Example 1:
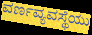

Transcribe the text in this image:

ವರ್ಣವ್ಯವಸ್ಥೆಯು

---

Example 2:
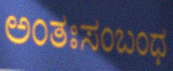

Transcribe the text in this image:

ಅಂತಃಸಂಬಂಧ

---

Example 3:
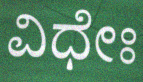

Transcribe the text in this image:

ವಿಧೇಃ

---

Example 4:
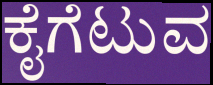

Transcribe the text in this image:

ಕೈಗೆಟುವ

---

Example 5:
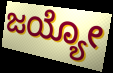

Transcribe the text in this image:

ಜಯ್ಯೋ